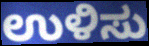
ಉಳಿಸು